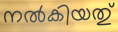
നൽകിയതു്